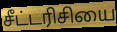
சீட்டரிசியை